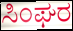
ಸಿಂಘರ